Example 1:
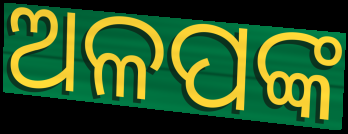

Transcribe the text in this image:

ଅଳପଙ୍କ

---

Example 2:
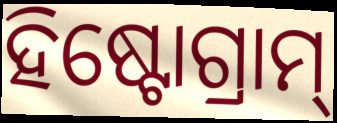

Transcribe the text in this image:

ହିଷ୍ଟୋଗ୍ରାମ୍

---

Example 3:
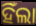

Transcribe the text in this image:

ହିଁଲା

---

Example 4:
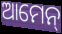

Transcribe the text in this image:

ଆମେନ୍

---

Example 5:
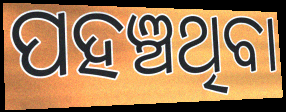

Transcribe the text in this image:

ପହଞ୍ଚଥିବା